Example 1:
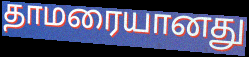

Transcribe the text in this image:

தாமரையானது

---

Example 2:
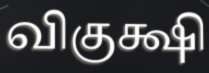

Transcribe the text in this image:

விகுக்ஷி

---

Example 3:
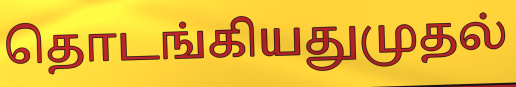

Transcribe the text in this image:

தொடங்கியதுமுதல்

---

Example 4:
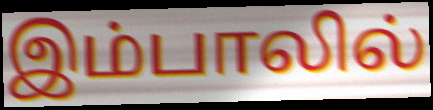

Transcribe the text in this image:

இம்பாலில்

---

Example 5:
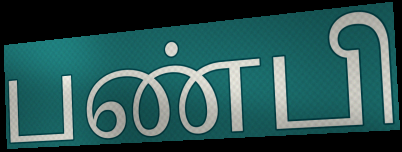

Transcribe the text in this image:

பண்பி